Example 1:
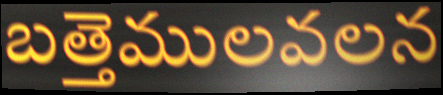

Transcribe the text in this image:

బత్తెములవలన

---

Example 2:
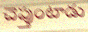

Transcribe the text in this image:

చెప్తుంటాడు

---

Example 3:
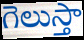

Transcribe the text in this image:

గెలుస్తా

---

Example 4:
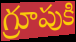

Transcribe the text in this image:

గ్రూపుకి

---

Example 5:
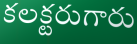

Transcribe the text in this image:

కలక్టరుగారు